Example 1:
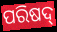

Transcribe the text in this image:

ପରିଷଦ୍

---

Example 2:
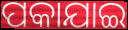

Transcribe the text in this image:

ପକାଯାଇ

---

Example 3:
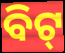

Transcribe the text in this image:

ବିଟ୍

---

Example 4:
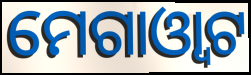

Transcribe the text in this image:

ମେଗାଓ୍ଵାଟ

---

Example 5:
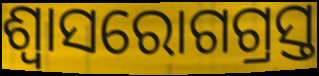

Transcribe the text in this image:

ଶ୍ୱାସରୋଗଗ୍ରସ୍ତ